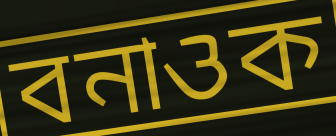
বনাওক